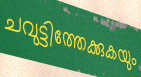
ചവുട്ടിത്തേക്കുകയും